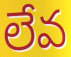
లేవ